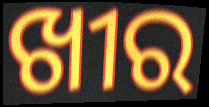
ଖୀର